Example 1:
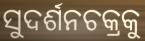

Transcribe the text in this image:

ସୁଦର୍ଶନଚକ୍ରକୁ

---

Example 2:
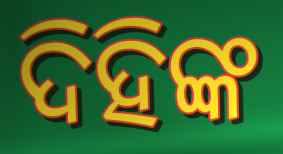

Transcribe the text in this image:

ଦିହିଙ୍କ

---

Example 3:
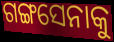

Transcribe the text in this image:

ଗଙ୍ଗସେନାକୁ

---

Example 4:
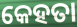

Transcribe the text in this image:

କେହତା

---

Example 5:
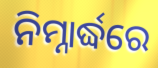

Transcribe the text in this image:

ନିମ୍ନାର୍ଦ୍ଧରେ